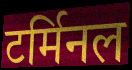
टर्मिनल